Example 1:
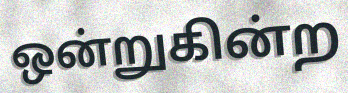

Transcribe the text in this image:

ஒன்றுகின்ற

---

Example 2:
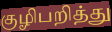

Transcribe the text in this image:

குழிபறித்து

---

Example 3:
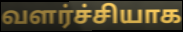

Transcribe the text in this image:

வளர்ச்சியாக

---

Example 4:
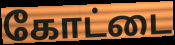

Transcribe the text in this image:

கோட்டை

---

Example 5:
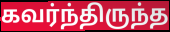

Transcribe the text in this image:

கவர்ந்திருந்த